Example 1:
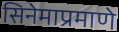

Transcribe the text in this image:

सिनेमाप्रमाणे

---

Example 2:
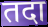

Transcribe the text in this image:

तदा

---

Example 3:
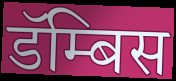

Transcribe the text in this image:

डॅम्बिस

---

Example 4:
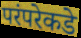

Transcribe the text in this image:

परंपरेकडे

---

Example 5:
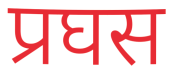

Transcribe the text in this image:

प्रघस